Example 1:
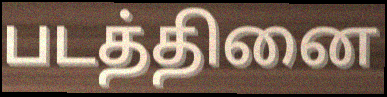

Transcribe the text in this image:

படத்தினை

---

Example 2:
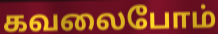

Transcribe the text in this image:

கவலைபோம்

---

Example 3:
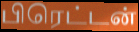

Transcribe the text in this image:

பிரெட்டன்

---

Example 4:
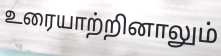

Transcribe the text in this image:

உரையாற்றினாலும்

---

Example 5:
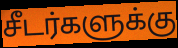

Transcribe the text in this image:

சீடர்களுக்கு